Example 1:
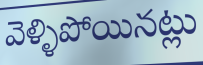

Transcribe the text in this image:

వెళ్ళిపోయినట్లు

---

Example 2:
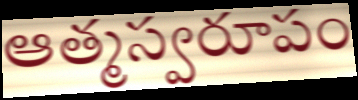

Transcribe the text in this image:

ఆత్మస్వరూపం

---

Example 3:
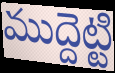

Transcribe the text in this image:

ముద్దెట్టి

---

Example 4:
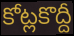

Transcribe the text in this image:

కోట్లకొద్దీ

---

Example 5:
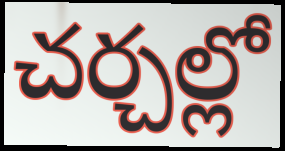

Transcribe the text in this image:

చర్చల్లో